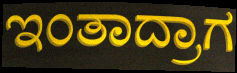
ಇಂತಾದ್ರಾಗ